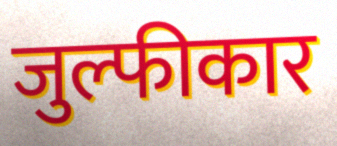
जुल्फीकार